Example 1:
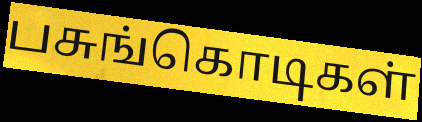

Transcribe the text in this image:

பசுங்கொடிகள்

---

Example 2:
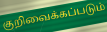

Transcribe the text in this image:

குறிவைக்கப்படும்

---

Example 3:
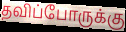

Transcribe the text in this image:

தவிப்போருக்கு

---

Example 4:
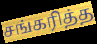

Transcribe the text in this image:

சங்கரித்த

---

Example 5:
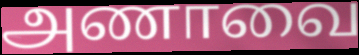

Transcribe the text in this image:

அணாவை